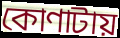
কোণাটায়